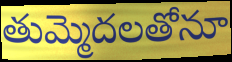
తుమ్మెదలతోనూ